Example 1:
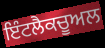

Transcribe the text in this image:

ਇੰਟਲੈਕਚੂਅਲ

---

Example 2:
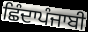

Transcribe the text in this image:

ਛਿੰਦਾਪੰਜਾਬੀ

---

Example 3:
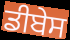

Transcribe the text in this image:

ਡੀਬੇਸ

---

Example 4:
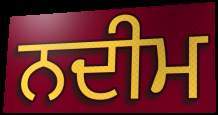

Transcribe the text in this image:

ਨਦੀਮ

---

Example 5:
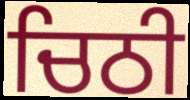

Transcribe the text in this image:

ਚਿਠੀ